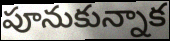
పూనుకున్నాక